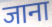
जाना